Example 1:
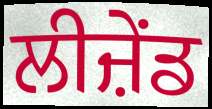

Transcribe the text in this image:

ਲੀਜ਼ੇਂਡ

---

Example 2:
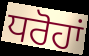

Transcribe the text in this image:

ਧਰੋਹਾਂ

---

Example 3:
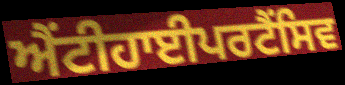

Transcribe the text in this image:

ਐਂਟੀਹਾਈਪਰਟੈਂਸਿਵ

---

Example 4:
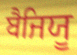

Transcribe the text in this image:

ਬੈਜਿਯੂ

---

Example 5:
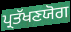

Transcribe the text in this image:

ਪ੍ਰਤੱਖਣਯੋਗ